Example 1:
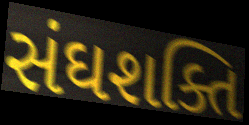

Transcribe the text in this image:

સંઘશક્તિ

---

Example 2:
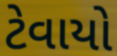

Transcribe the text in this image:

ટેવાયો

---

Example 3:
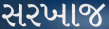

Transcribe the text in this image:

સરખાજ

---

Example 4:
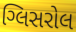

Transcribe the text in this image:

ગ્લિસરોલ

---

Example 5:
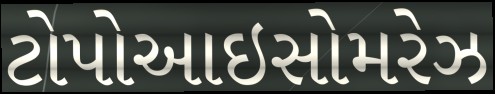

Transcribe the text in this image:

ટોપોઆઇસોમરેઝ